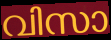
വിസാ